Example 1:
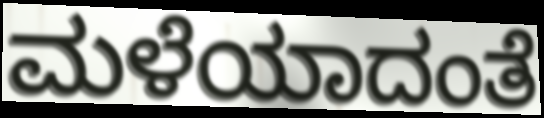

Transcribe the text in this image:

ಮಳೆಯಾದಂತೆ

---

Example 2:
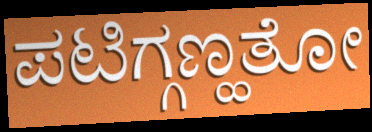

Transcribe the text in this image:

ಪಟಿಗ್ಗಣ್ಹತೋ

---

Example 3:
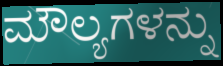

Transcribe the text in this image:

ಮೌಲ್ಯಗಳನ್ನು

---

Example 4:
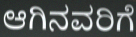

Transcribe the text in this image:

ಆಗಿನವರಿಗೆ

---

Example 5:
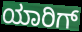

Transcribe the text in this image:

ಯಾರಿಗ್